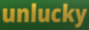
unlucky